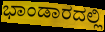
ಭಾಂಡಾರದಲ್ಲಿ